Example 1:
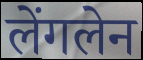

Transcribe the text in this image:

लेंगलेन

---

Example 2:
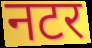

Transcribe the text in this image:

नटर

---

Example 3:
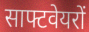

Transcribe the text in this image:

साफ्टवेयरों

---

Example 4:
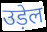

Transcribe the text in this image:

उड़ेल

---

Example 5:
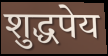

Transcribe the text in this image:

शुद्धपेय